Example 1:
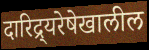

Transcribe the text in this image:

दारिद्र्यरेषेखालील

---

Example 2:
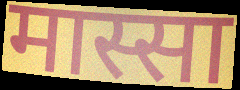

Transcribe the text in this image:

मास्सा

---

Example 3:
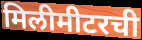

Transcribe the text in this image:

मिलीमीटरची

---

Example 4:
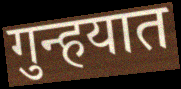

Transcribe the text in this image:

गुन्हयात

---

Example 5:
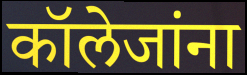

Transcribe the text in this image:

कॉलेजांना